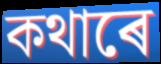
কথাৰে